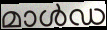
മാൾഡ